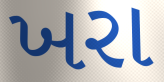
ખરા